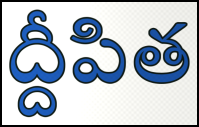
ద్దీపిత